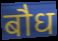
बौध